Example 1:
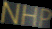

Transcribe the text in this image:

NHP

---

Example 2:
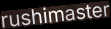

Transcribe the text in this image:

rushimaster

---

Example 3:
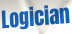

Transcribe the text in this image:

Logician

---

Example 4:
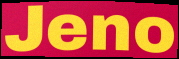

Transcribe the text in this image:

Jeno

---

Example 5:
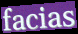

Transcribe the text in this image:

facias